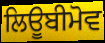
ਲਿਊਬੀਮੋਵ